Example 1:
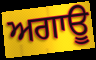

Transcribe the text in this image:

ਅਗਾਊ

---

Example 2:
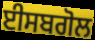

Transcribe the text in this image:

ਈਸਬਗੋਲ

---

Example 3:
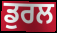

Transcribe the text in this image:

ਡੁਰਲ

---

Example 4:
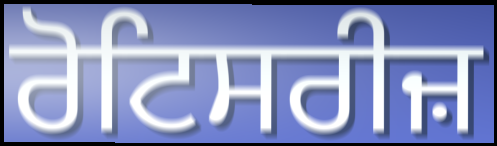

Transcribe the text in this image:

ਰੋਟਿਸਰੀਜ਼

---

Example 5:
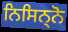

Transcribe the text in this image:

ਨਿਸਿਨ੍ਨੋ